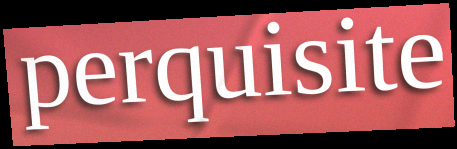
perquisite